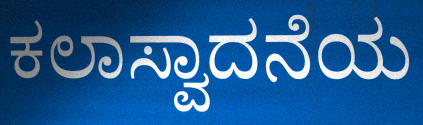
ಕಲಾಸ್ವಾದನೆಯ